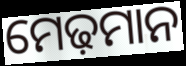
ମେଢ଼ମାନ